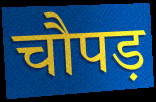
चौपड़